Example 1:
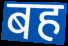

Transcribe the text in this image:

बह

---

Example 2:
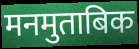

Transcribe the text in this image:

मनमुताबिक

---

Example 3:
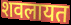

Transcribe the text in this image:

शवलायत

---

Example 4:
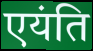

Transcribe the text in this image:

एयंति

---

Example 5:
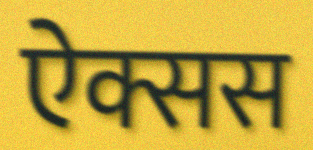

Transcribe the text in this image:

ऐक्सस